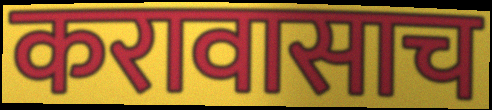
करावासाच